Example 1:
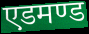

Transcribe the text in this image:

एडमण्ड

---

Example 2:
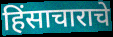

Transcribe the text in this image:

हिंसाचाराचे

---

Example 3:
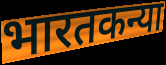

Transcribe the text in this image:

भारतकन्या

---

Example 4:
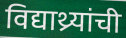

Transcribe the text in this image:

विद्याथ्र्यांची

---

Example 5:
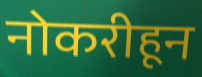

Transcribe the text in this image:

नोकरीहून